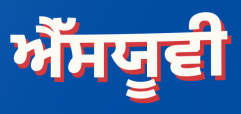
ਐੱਸਯੂਵੀ